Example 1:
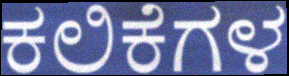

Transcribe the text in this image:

ಕಲಿಕೆಗಳ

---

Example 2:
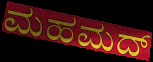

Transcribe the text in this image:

ಮಹಮದ್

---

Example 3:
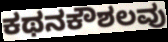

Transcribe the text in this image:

ಕಥನಕೌಶಲವು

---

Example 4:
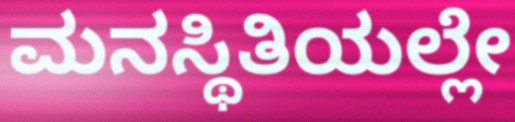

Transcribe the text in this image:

ಮನಸ್ಥಿತಿಯಲ್ಲೇ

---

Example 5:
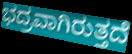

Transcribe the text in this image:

ಭದ್ರವಾಗಿರುತ್ತದೆ